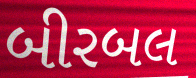
બીરબલ